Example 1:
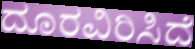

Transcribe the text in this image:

ದೂರವಿರಿಸಿದೆ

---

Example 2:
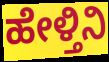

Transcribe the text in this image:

ಹೇಳ್ತಿನಿ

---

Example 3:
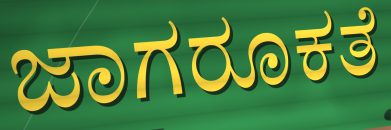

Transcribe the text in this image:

ಜಾಗರೂಕತೆ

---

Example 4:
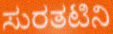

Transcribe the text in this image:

ಸುರತಟಿನಿ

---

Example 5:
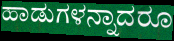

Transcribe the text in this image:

ಹಾಡುಗಳನ್ನಾದರೂ